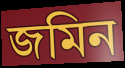
জমিন